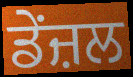
ਡੇਂਜ਼ਲ